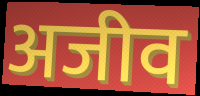
अजीव